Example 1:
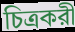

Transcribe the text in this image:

চিত্রকরী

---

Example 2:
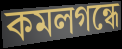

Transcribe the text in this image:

কমলগন্ধে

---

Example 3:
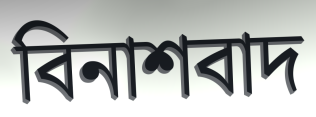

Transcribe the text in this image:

বিনাশবাদ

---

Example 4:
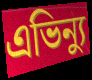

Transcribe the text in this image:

এভিন্যু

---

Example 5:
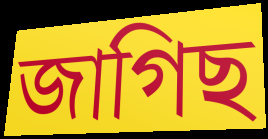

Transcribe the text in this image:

জাগিছ